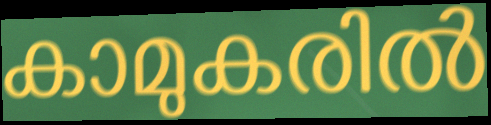
കാമുകരിൽ